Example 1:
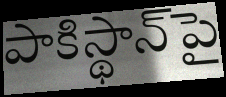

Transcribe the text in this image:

పాకిస్థాన్‌పై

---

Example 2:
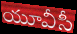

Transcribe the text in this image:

యూవీసీ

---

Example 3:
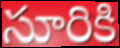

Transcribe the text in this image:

సూరికి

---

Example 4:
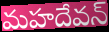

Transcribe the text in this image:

మహదేవన్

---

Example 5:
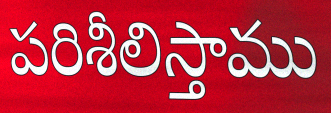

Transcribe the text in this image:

పరిశీలిస్తాము